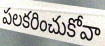
పలకరించుకోవా